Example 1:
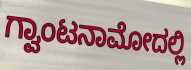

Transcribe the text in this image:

ಗ್ವಾಂಟನಾಮೋದಲ್ಲಿ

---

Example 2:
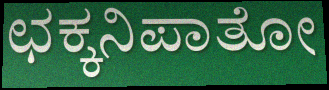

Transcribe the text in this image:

ಛಕ್ಕನಿಪಾತೋ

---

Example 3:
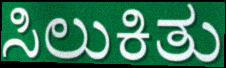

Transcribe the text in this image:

ಸಿಲುಕಿತು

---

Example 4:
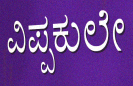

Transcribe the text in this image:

ವಿಪ್ಪಕುಲೇ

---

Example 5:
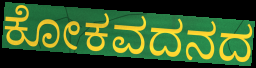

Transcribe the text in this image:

ಕೋಕವದನದ